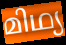
മിഥ്യ